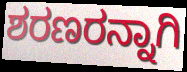
ಶರಣರನ್ನಾಗಿ